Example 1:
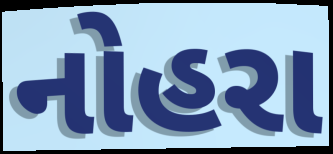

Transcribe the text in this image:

નોહરા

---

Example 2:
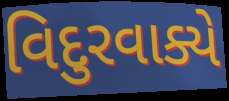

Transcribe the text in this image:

વિદુરવાક્યે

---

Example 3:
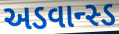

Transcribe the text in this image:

અડવાન્સ્ડ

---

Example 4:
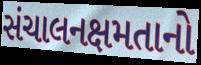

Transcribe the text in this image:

સંચાલનક્ષમતાનો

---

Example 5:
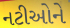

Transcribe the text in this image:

નટીઓને